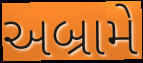
અબ્રામે